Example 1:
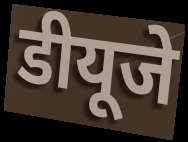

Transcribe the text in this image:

डीयूजे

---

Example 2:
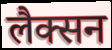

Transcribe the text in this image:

लैक्सन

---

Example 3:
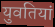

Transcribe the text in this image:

युवतियां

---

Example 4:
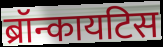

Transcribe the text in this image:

ब्रॉन्कायटिस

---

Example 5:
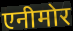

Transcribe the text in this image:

एनीमोर